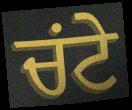
ਚਂਟੇ